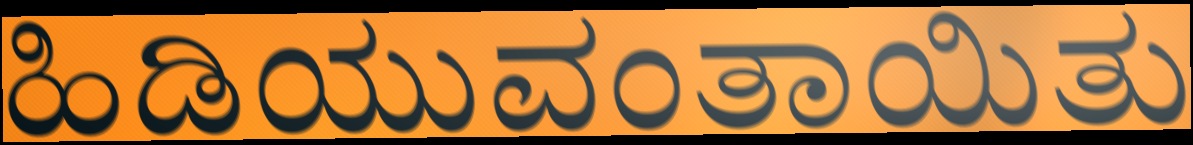
ಹಿಡಿಯುವಂತಾಯಿತು